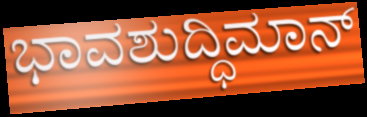
ಭಾವಶುದ್ಧಿಮಾನ್